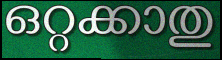
ഒറ്റക്കാതു